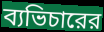
ব্যভিচারের